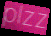
plzz